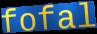
fofal